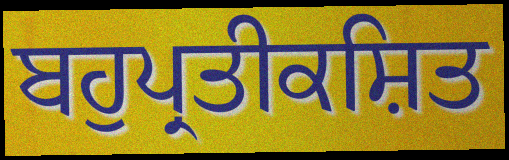
ਬਹੁਪ੍ਰਤੀਕਸ਼ਿਤ